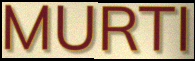
MURTI